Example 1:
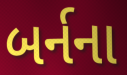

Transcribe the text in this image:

બર્નના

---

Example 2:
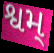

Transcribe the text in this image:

શ્વમ્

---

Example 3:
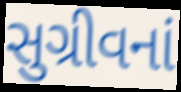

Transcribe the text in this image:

સુગ્રીવનાં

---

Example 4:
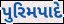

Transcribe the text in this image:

પુરિમપાદે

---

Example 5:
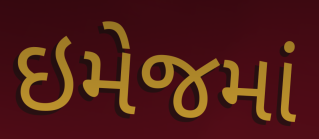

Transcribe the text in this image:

ઇમેજમાં